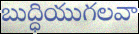
బుద్ధియుగలవా